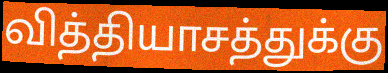
வித்தியாசத்துக்கு